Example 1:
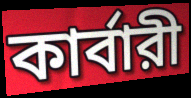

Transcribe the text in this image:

কার্বারী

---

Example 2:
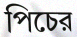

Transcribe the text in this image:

পিচের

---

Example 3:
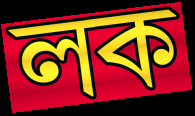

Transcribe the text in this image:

লক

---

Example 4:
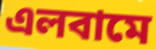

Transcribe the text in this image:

এলবামে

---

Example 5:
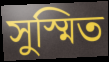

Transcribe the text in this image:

সুস্মিত